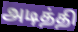
அடித்தி